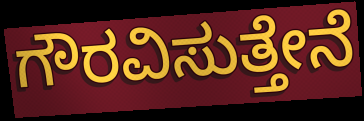
ಗೌರವಿಸುತ್ತೇನೆ